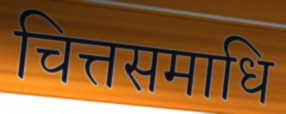
चित्तसमाधि